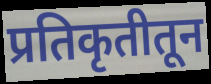
प्रतिकृतीतून